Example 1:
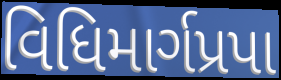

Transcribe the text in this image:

વિધિમાર્ગપ્રપા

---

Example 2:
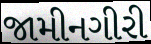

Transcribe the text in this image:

જામીનગીરી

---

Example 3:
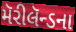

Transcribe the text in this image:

મૅરીલૅન્ડના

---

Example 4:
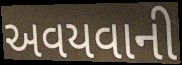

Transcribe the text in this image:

અવયવાની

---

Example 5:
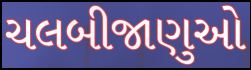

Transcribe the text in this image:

ચલબીજાણુઓ